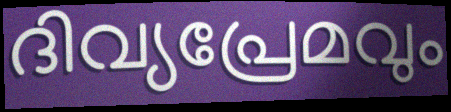
ദിവ്യപ്രേമവും